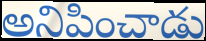
అనిపించాడు